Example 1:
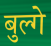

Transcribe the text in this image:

बुल्गे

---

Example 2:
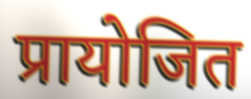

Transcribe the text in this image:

प्रायोजित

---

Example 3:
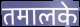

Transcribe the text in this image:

तमालके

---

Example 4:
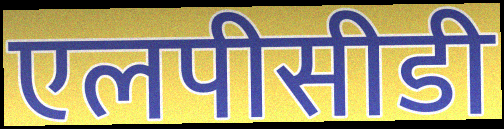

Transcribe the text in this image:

एलपीसीडी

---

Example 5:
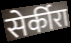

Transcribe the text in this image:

सेर्कीरा